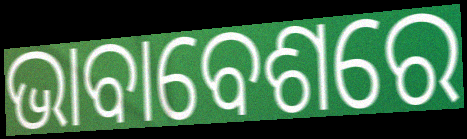
ଭାବାବେଶରେ